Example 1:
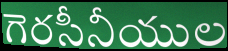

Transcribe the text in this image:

గెరసీనీయుల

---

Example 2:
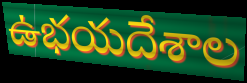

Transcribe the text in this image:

ఉభయదేశాల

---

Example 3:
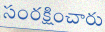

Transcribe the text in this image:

సంరక్షించారు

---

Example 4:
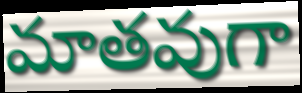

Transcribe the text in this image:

మాతవుగా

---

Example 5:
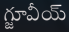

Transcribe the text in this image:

గ్జూవీయ్